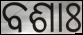
ବଶାଃ